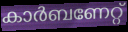
കാർബണേറ്റ്